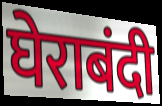
घेराबंदी